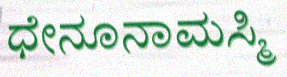
ಧೇನೂನಾಮಸ್ಮಿ